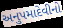
અનુપમાદેવીનો